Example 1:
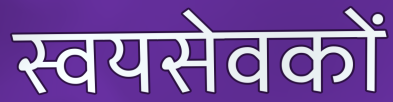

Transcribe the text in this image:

स्वयसेवकों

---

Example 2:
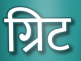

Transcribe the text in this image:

ग्रिट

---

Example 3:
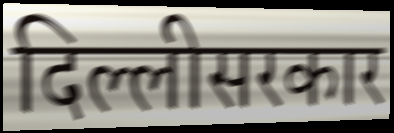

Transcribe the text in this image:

दिल्लीसरकार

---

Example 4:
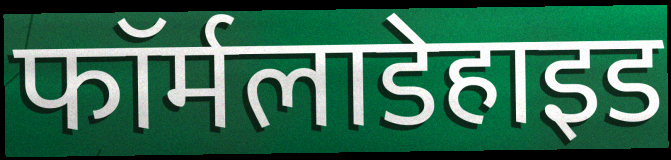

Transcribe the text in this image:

फॉर्मलाडेहाइड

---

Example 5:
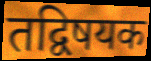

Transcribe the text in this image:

तद्विषयक